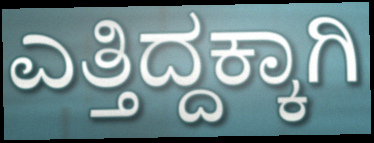
ಎತ್ತಿದ್ದಕ್ಕಾಗಿ